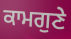
ਕਾਮਗੁਣੇ